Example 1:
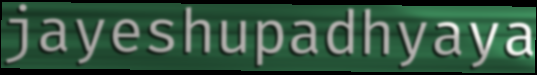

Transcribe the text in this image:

jayeshupadhyaya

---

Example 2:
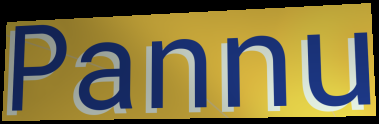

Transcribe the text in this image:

Pannu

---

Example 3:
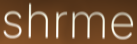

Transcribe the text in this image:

shrme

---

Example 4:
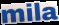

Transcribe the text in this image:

mila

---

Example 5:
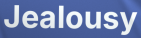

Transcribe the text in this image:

Jealousy